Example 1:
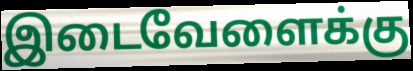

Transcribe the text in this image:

இடைவேளைக்கு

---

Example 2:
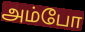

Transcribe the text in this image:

அம்போ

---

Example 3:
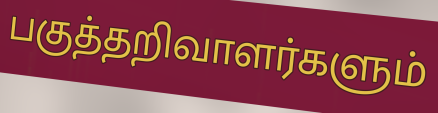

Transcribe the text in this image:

பகுத்தறிவாளர்களும்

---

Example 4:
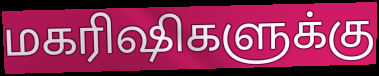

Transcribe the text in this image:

மகரிஷிகளுக்கு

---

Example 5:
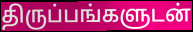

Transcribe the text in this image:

திருப்பங்களுடன்